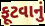
ફૂટવાનું